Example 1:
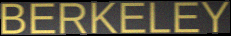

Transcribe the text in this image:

BERKELEY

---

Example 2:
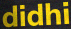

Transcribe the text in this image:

didhi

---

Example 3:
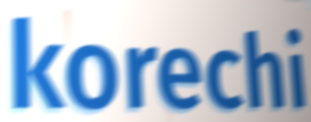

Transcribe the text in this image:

korechi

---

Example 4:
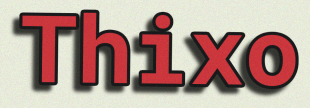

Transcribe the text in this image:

Thixo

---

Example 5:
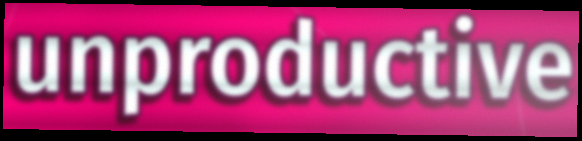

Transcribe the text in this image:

unproductive